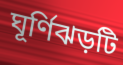
ঘূর্ণিঝড়টি